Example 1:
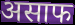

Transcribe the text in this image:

असाफ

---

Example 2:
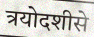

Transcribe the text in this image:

त्रयोदशीसे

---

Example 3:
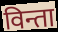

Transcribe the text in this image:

विन्ता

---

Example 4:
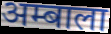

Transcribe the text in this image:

अम्बाला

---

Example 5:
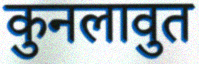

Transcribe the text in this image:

कुनलावुत